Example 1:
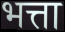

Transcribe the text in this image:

भत्ता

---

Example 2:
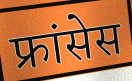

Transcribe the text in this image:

फ्रांसेस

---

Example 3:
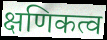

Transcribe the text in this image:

क्षणिकत्व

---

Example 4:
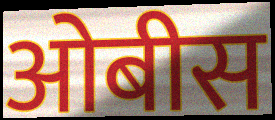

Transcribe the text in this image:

ओबीस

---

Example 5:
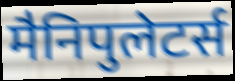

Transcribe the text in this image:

मैनिपुलेटर्स